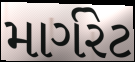
માર્ગરેટ